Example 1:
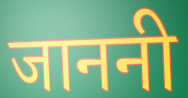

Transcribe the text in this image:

जाननी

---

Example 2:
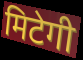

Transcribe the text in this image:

मिटेगी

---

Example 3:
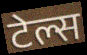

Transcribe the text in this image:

टेल्स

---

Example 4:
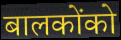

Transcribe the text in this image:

बालकोंको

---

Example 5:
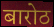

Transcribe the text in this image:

बारोठ